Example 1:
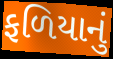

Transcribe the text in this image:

ફળિયાનું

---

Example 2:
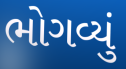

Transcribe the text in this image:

ભોગવ્યું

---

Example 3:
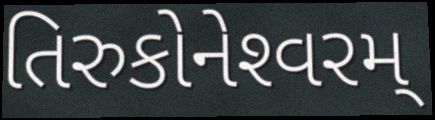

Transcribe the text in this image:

તિરુકોનેશ્‍વરમ્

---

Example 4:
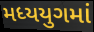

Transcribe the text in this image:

મધ્યયુગમાં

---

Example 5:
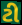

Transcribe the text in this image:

ટી